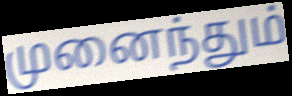
முனைந்தும்